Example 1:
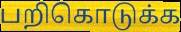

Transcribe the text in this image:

பறிகொடுக்க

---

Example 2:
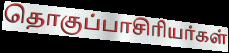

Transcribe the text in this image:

தொகுப்பாசிரியர்கள்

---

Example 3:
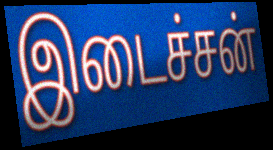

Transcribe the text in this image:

இடைச்சன்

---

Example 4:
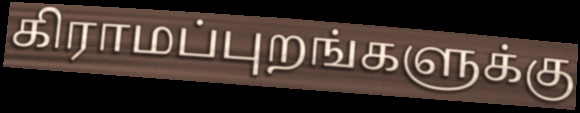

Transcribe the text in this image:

கிராமப்புறங்களுக்கு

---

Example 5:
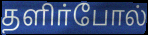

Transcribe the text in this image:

தளிர்போல்